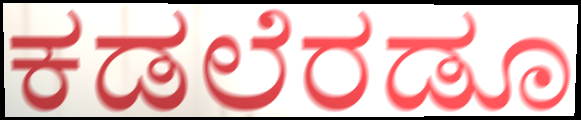
ಕಡಲೆರಡೂ